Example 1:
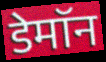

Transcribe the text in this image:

डेमॉन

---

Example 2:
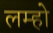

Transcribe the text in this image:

लम्हो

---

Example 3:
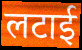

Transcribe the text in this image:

लटाई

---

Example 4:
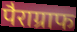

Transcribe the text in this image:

पैराग्राफ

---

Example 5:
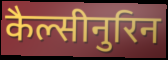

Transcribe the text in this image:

कैल्सीनुरिन